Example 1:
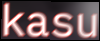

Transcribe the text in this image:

kasu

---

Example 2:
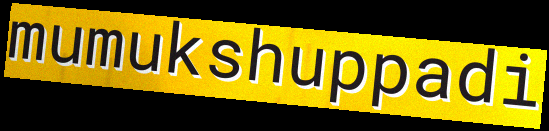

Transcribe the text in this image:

mumukshuppadi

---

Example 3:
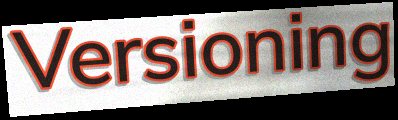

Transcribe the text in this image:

Versioning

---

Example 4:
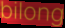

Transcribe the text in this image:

bilong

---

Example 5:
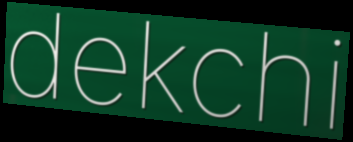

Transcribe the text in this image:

dekchi